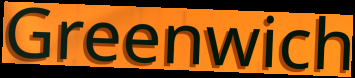
Greenwich